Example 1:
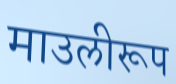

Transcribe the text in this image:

माउलीरूप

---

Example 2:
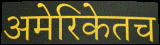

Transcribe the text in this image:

अमेरिकेतच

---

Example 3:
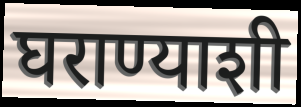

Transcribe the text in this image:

घराण्याशी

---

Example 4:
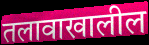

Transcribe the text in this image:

तलावाखालील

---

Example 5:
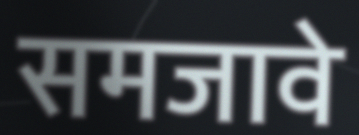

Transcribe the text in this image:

समजावे